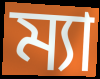
ম্যা